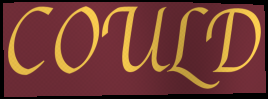
COULD